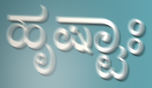
ಹೃಷ್ಟಾಃ